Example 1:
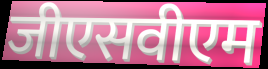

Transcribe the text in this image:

जीएसवीएम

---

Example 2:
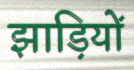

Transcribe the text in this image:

झाड़ियों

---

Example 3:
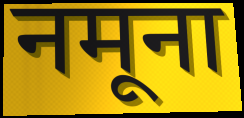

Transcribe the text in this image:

नमूना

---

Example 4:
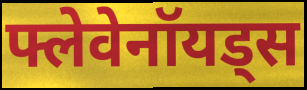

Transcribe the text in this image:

फ्लेवेनॉयड्स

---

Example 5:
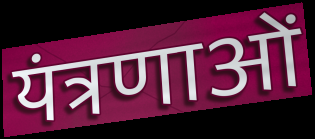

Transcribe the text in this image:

यंत्रणाओं